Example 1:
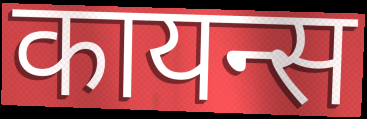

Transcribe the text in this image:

कायन्स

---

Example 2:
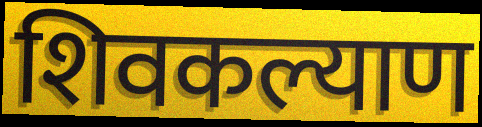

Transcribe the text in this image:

शिवकल्याण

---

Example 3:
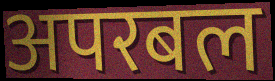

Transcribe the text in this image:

अपरबल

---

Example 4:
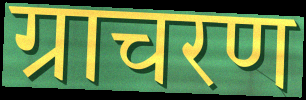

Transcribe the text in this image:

ग्राचरण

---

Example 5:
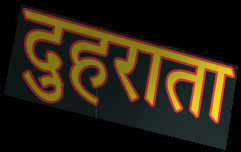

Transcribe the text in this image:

दुहराता